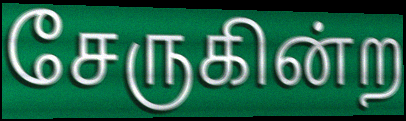
சேருகின்ற